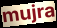
mujra